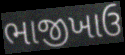
ભાજીખાઉ